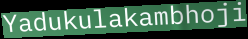
Yadukulakambhoji